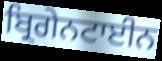
ਬ੍ਰਿਗੇਨਟਾਈਨ